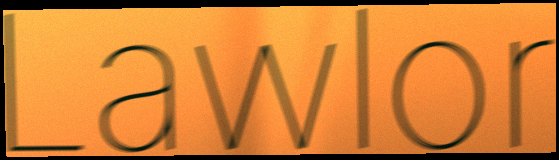
Lawlor